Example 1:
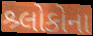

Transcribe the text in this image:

શ્ર્લોકોના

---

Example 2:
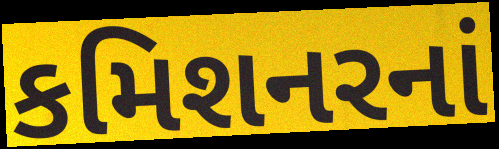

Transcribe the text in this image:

કમિશનરનાં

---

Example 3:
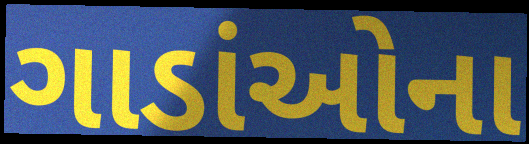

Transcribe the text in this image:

ગાડાંઓના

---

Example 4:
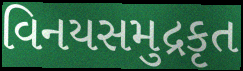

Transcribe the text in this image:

વિનયસમુદ્રકૃત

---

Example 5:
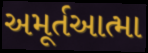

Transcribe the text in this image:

અમૂર્તઆત્મા